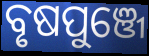
ବୃଷପୁଞ୍ଜେ